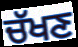
ਚੱਖਣ